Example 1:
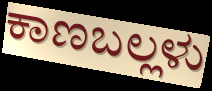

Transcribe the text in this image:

ಕಾಣಬಲ್ಲಳು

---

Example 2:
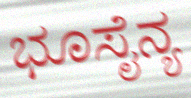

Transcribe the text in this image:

ಭೂಸೈನ್ಯ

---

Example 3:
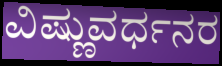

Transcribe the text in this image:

ವಿಷ್ಣುವರ್ಧನರ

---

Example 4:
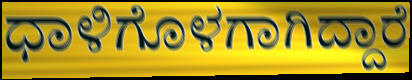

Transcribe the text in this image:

ಧಾಳಿಗೊಳಗಾಗಿದ್ದಾರೆ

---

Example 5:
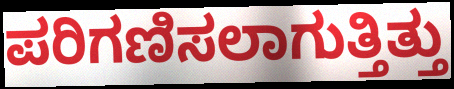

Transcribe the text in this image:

ಪರಿಗಣಿಸಲಾಗುತ್ತಿತ್ತು